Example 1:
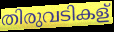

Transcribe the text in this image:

തിരുവടികള്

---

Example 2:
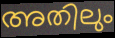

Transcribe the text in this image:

അതിലും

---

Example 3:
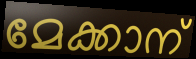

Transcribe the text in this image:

മേക്കാന്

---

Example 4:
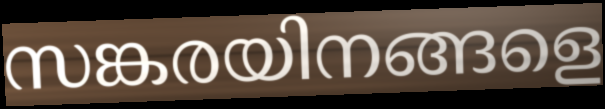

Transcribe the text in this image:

സങ്കരയിനങ്ങളെ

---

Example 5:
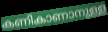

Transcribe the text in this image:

കണികാണാനുള്ള